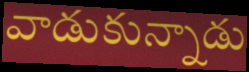
వాడుకున్నాడు